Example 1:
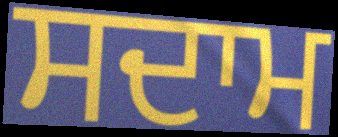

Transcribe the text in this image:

ਸਦਾਮ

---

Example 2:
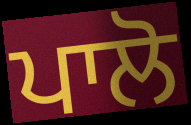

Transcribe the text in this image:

ਪਾਲੋ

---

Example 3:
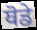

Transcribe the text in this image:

ਥੋਡੇ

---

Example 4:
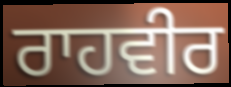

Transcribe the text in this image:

ਰਾਹਵੀਰ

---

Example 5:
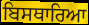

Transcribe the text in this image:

ਬਿਸਥਾਰਿਆ